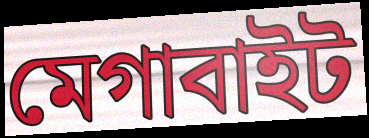
মেগাবাইট